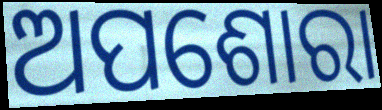
ଅପଶୋରା